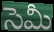
సెమీ